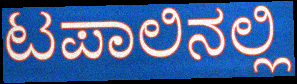
ಟಪಾಲಿನಲ್ಲಿ